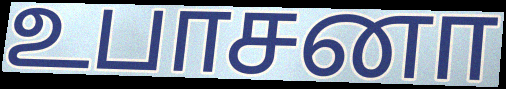
உபாசனா